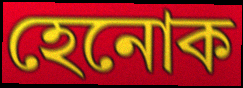
হেনোক